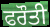
ਫਰੌਤੀ